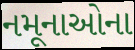
નમૂનાઓના